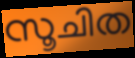
സൂചിത